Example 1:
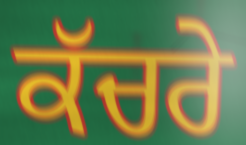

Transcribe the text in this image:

ਕੱਚਰੇ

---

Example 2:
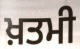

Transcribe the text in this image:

ਖ਼ਤਮੀ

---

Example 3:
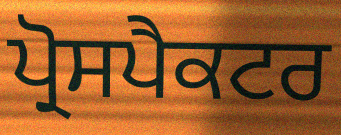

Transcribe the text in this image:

ਪ੍ਰੋਸਪੈਕਟਰ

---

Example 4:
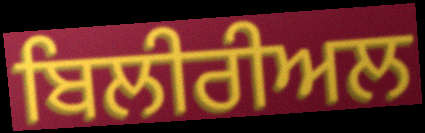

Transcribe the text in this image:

ਬਿਲੀਰੀਅਲ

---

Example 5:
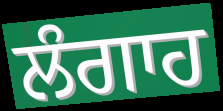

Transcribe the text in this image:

ਲੰਗਾਹ